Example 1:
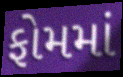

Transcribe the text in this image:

ફોમમાં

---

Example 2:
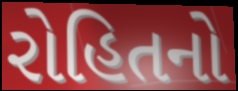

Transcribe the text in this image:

રોહિતનો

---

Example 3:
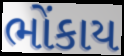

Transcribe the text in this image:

ભોંકાય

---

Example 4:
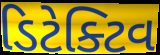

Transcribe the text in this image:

ડિટેક્ટિવ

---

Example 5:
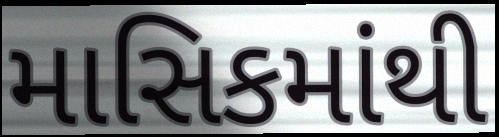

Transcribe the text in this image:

માસિકમાંથી